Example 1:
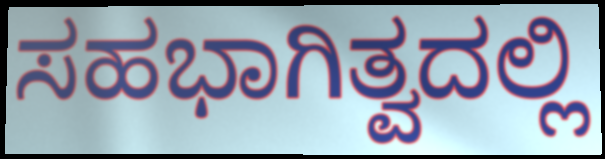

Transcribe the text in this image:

ಸಹಭಾಗಿತ್ವದಲ್ಲಿ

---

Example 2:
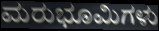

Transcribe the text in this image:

ಮರುಭೂಮಿಗಳು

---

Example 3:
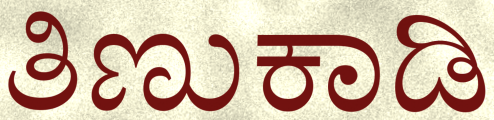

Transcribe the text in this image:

ತಿಣುಕಾಡಿ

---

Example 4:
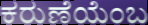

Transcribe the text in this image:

ಕರುಣೆಯೆಂಬ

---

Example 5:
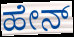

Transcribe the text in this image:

ಹೇನ್